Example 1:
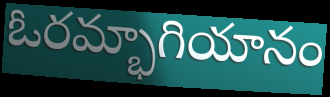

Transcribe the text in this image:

ఓరమ్భాగియానం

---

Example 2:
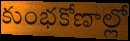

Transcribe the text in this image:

కుంభకోణాల్లో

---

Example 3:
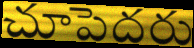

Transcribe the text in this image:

చూపెదరు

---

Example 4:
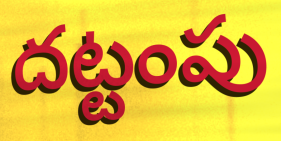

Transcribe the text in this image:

దట్టంపు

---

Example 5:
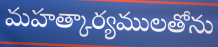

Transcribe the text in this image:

మహత్కార్యములతోను